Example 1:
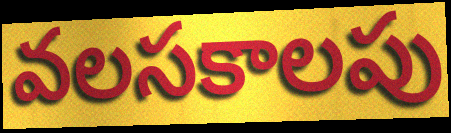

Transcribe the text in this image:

వలసకాలపు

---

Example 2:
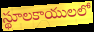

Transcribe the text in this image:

స్థూలకాయులలో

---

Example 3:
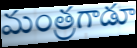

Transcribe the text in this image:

మంత్రగాడూ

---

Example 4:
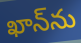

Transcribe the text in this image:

ఖాన్‌ను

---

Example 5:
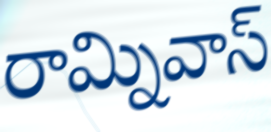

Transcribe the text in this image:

రామ్నివాస్